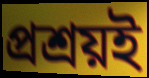
প্রশ্রয়ই